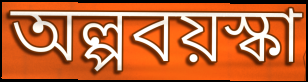
অল্পবয়স্কা